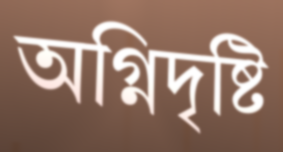
অগ্নিদৃষ্টি